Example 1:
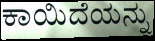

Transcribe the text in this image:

ಕಾಯಿದೆಯನ್ನು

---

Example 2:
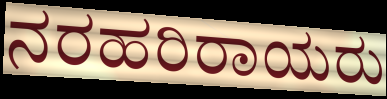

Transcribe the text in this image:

ನರಹರಿರಾಯರು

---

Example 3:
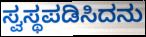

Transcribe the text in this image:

ಸ್ವಸ್ಥಪಡಿಸಿದನು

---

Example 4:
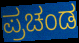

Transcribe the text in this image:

ಪ್ರಚಂಡ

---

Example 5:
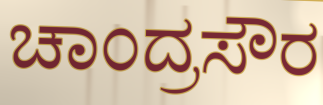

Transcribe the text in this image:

ಚಾಂದ್ರಸೌರ